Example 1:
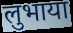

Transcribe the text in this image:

लुभाया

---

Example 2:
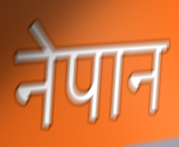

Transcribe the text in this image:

नेपान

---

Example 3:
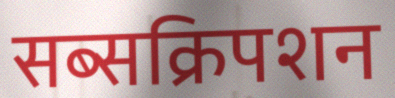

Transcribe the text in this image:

सब्सक्रिपशन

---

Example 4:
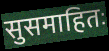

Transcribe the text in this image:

सुसमाहितः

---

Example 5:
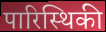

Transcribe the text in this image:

पारिस्थिकी